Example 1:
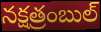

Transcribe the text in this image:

నక్షత్రంబుల్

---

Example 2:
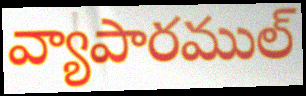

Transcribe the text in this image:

వ్యాపారముల్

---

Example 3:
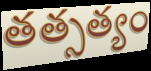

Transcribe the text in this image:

తత్సత్యం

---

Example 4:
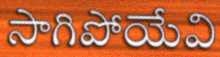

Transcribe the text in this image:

సాగిపోయేవి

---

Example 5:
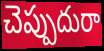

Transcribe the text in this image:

చెప్పుదురా